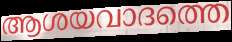
ആശയവാദത്തെ